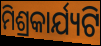
ମିଶ୍ରକାର୍ଯ୍ୟଟି